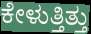
ಕೇಳುತ್ತಿತ್ತು